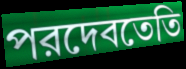
পরদেবতেতি